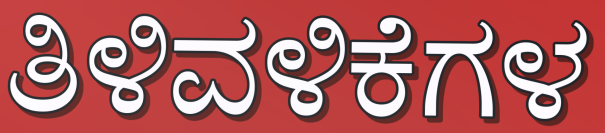
ತಿಳಿವಳಿಕೆಗಳ